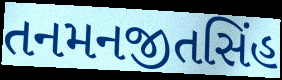
તનમનજીતસિંહ